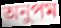
অনুপম